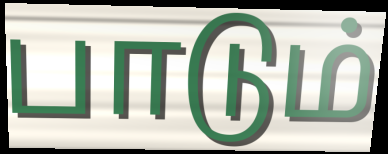
பாடும்